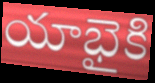
యాభైకి